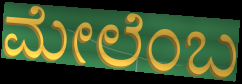
ಮೇಲೆಂಬ